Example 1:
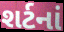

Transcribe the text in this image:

શર્ટનાં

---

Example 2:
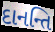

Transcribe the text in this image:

દાનન્તિ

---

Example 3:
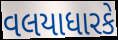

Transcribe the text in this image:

વલયાધારકે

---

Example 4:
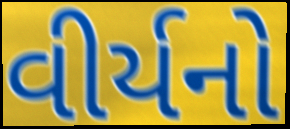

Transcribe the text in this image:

વીર્યનો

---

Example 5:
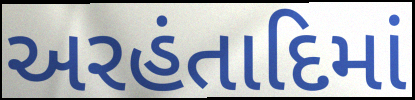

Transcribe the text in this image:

અરહંતાદિમાં